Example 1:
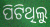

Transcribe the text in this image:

ପିଟିଥିଲୁ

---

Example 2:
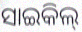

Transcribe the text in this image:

ସାଇକିଲ୍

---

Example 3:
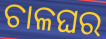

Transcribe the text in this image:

ଚାଳଘର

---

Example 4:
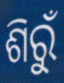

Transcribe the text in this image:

ଶିରୁଁ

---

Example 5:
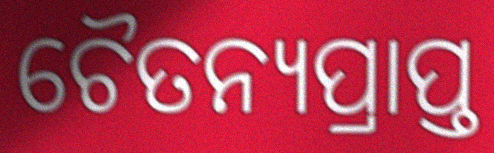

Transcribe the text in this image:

ଚୈତନ୍ୟପ୍ରାପ୍ତ